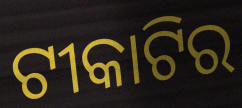
ଟୀକାଟିର